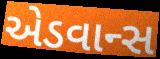
એડવાન્સ